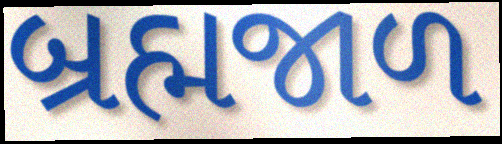
બ્રહ્મજાળ